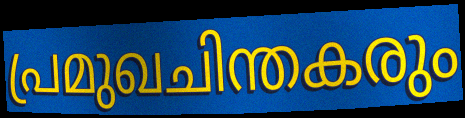
പ്രമുഖചിന്തകരും